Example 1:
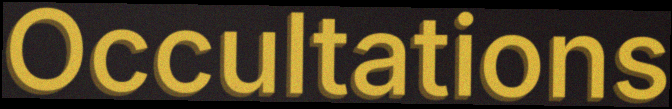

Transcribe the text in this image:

Occultations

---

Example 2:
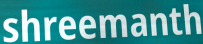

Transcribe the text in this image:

shreemanth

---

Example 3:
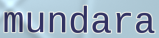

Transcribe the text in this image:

mundara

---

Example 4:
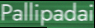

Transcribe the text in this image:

Pallipadai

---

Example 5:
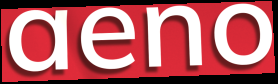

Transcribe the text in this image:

aeno